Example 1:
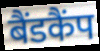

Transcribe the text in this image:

बैंडकैंप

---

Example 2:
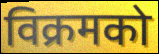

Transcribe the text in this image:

विक्रमको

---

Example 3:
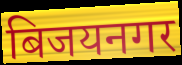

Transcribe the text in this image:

बिजयनगर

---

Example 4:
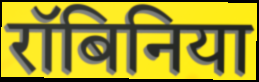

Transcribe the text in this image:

रॉबिनिया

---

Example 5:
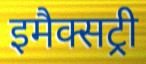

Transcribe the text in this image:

इमैक्सट्री